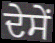
ਦੇਸੇਂ